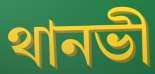
থানভী